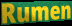
Rumen